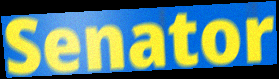
Senator